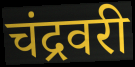
चंद्रवरी